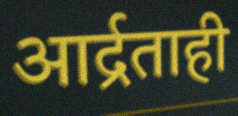
आर्द्रताही